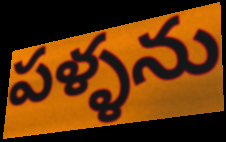
పళ్ళను